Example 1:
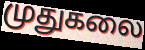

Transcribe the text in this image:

முதுகலை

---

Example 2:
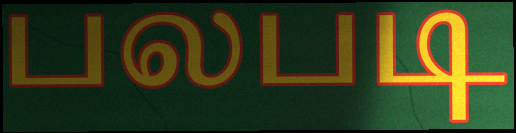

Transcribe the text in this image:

பலபடி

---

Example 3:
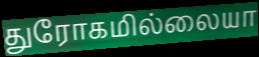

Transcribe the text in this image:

துரோகமில்லையா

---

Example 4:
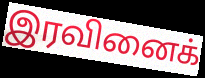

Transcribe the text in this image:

இரவினைக்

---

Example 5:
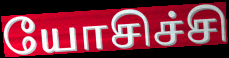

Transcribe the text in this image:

யோசிச்சி